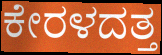
ಕೇರಳದತ್ತ